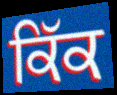
ਕਿੱਕ